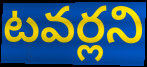
టవర్లని